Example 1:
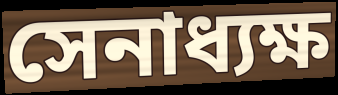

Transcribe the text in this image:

সেনাধ্যক্ষ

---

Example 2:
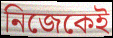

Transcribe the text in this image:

নিজেকেই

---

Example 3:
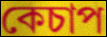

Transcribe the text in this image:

কেচাপ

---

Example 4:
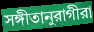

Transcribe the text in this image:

সঙ্গীতানুরাগীরা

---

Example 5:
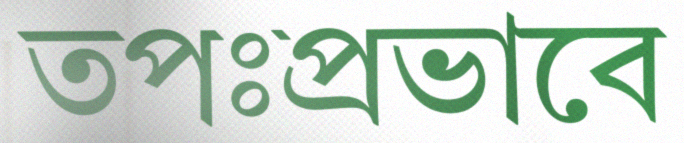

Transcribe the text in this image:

তপঃপ্রভাবে